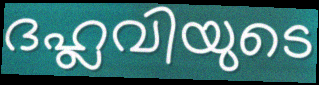
ദഹ്ലവിയുടെ